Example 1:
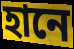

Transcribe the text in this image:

হানে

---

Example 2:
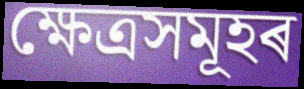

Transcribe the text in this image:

ক্ষেত্ৰসমূহৰ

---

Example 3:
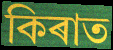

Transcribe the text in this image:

কিৰাত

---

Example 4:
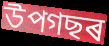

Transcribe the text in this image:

উপগছৰ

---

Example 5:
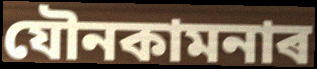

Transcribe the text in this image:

যৌনকামনাৰ